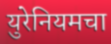
युरेनियमचा